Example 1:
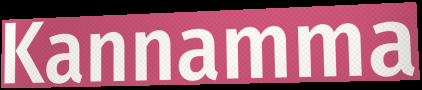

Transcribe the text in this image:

Kannamma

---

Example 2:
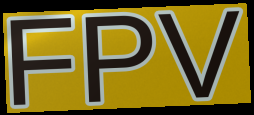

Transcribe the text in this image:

FPV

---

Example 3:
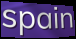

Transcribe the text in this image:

spain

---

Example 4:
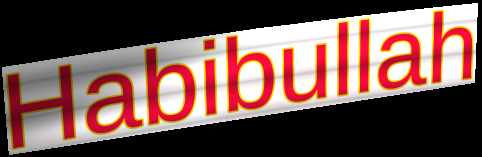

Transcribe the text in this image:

Habibullah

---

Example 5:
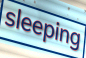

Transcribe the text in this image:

sleeping